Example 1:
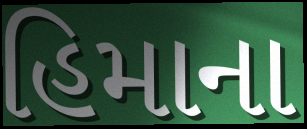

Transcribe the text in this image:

હિમાના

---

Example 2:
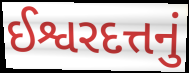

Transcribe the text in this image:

ઈશ્વરદત્તનું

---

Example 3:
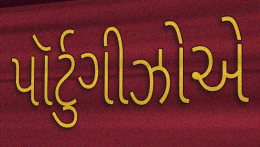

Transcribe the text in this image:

પૉર્ટુગીઝોએ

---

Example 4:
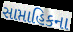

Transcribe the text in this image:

સાપ્તાહિકના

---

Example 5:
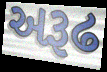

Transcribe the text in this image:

અરૂઢ